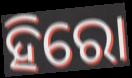
ହିରୋ